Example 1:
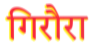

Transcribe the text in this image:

गिरौरा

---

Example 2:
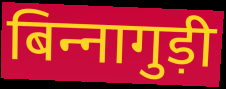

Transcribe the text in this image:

बिन्नागुड़ी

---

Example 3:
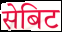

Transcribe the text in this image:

सेबिट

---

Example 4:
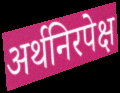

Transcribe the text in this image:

अर्थनिरपेक्ष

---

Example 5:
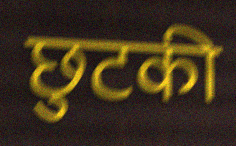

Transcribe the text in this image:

छुटकी